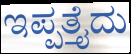
ಇಪ್ಪತ್ತೈದು